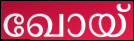
ഖോയ്